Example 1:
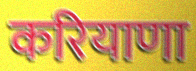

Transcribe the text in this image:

करियाणा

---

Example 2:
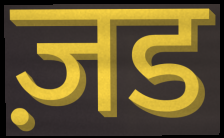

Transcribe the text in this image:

ज़ड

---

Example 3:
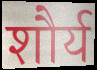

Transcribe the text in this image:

शौर्य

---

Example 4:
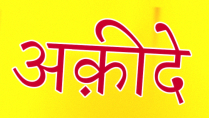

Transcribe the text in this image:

अक़ीदे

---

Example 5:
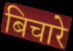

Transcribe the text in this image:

बिचारे